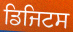
ਡਿਜਿਟਸ